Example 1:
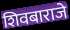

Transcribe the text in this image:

शिवबाराजे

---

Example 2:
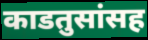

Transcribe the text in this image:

काडतुसांसह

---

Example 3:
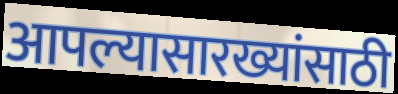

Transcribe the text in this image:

आपल्यासारख्यांसाठी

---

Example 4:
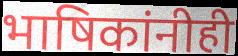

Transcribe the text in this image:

भाषिकांनीही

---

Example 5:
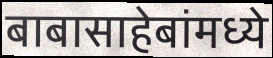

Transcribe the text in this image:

बाबासाहेबांमध्ये